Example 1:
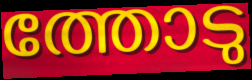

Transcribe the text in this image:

ത്തോടു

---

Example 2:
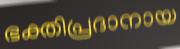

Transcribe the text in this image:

ഭക്തിപ്രദാനായ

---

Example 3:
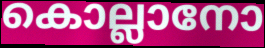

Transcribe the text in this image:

കൊല്ലാനോ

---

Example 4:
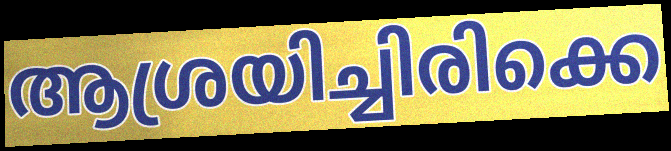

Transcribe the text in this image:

ആശ്രയിച്ചിരിക്കെ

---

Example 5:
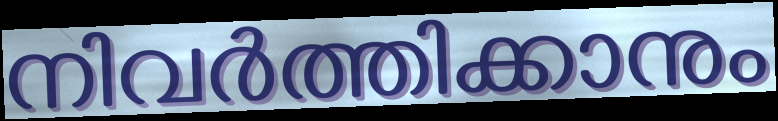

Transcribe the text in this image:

നിവർത്തിക്കാനും